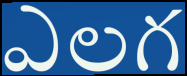
ఎలగ